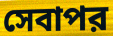
সেবাপর